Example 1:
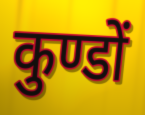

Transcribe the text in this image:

कुण्डों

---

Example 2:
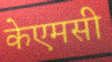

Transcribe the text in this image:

केएमसी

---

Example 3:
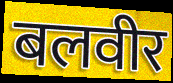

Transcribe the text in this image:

बलवीर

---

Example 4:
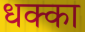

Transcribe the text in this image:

धक्का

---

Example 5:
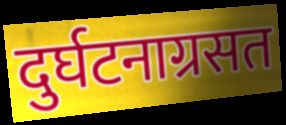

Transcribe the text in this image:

दुर्घटनाग्रसत